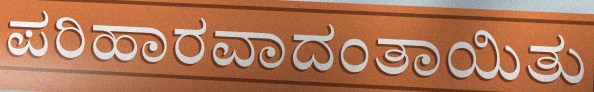
ಪರಿಹಾರವಾದಂತಾಯಿತು